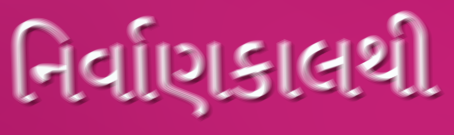
નિર્વાણકાલથી